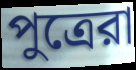
পুত্রেরা